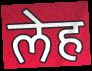
लेह